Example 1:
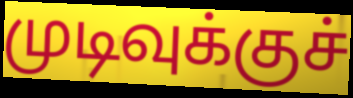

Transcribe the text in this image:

முடிவுக்குச்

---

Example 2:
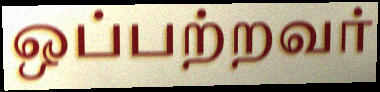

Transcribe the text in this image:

ஒப்பற்றவர்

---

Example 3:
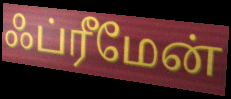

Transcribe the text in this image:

ஃப்ரீமேன்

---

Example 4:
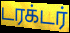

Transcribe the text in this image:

டரக்டர்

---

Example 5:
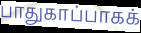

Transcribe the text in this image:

பாதுகாப்பாகக்